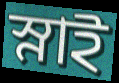
স্নাই